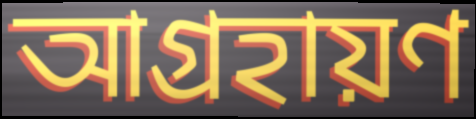
আগ্রহায়ণ